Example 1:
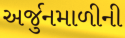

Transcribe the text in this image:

અર્જુનમાળીની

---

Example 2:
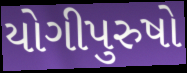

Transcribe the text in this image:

યોગીપુરુષો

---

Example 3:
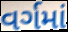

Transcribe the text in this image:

વર્ગમાં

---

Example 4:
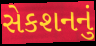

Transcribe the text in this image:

સેકશનનું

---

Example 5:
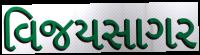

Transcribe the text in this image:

વિજયસાગર